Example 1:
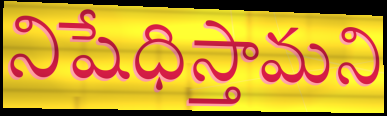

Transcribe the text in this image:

నిషేధిస్తామని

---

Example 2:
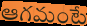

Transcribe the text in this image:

ఆగమంటే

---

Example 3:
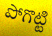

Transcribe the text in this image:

పోగొట్టి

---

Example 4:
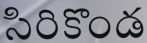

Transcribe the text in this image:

సిరికొండ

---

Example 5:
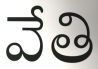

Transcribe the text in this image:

వేతి